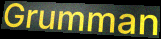
Grumman